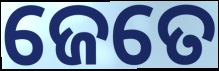
ଜେତେ